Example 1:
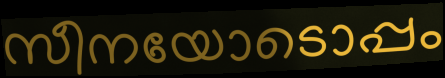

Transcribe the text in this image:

സീനയോടൊപ്പം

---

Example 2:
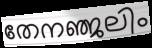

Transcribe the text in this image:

തേനഞ്ജലിം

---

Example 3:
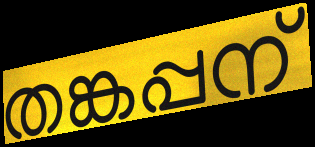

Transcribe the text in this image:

തങ്കപ്പന്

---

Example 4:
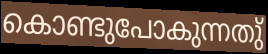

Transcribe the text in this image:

കൊണ്ടുപോകുന്നതു്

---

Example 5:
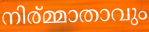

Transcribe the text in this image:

നിര്മ്മാതാവും